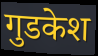
गुडकेश